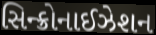
સિન્ક્રોનાઈઝેશન